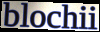
blochii